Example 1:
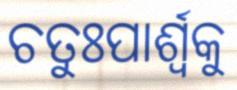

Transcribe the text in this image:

ଚତୁଃପାର୍ଶ୍ୱକୁ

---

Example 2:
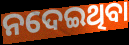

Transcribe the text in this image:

ନଦେଇଥିବା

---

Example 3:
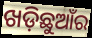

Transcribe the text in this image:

ଖଡ଼ିଛୁଆଁର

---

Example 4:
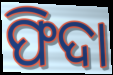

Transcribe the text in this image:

ଫିଦା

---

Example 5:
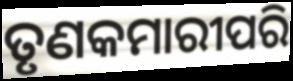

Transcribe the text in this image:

ତୃଣକମାରୀପରି